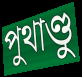
পুথাণ্ডু